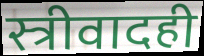
स्त्रीवादही